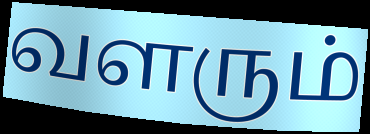
வளரும்